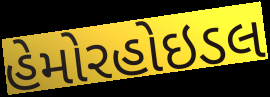
હેમોરહોઇડલ